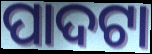
ପାଦଟା